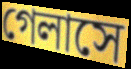
গেলাসে